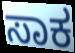
ಸಾಕ